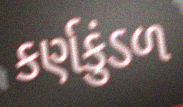
કર્ણકુંડળ